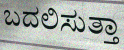
ಬದಲಿಸುತ್ತಾ